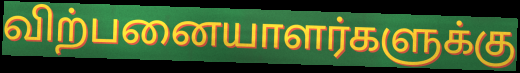
விற்பனையாளர்களுக்கு